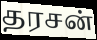
தரசன்